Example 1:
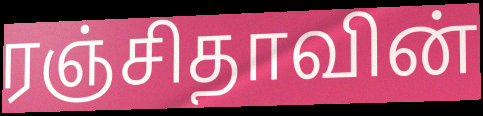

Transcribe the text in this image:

ரஞ்சிதாவின்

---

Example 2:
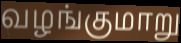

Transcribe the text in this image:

வழங்குமாறு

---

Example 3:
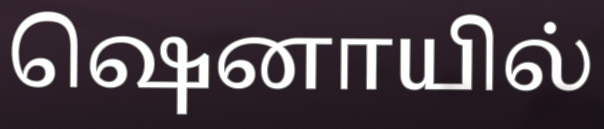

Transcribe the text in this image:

ஷெனாயில்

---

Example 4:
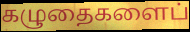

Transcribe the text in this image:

கழுதைகளைப்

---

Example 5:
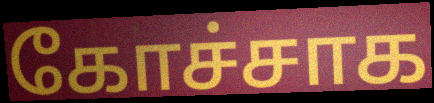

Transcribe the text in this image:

கோச்சாக